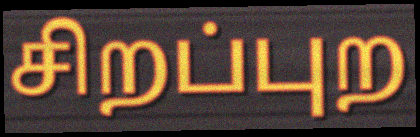
சிறப்புற